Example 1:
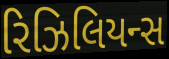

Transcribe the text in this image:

રિઝિલિયન્સ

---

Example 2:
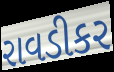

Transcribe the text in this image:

રાવડીકર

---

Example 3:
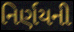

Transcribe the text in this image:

નિર્ણયની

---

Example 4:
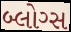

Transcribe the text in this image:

બ્લોગ્સ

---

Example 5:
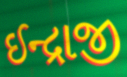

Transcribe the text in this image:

ઈન્દ્રાજી